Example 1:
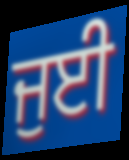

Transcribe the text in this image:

ਜੁਈ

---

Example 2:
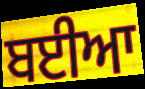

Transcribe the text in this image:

ਬਈਆ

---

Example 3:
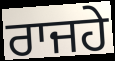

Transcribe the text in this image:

ਰਾਜਹੇ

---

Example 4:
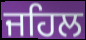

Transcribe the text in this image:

ਜਹਿਲ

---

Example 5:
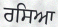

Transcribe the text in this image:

ਰਸਿਆ